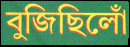
বুজিছিলোঁ